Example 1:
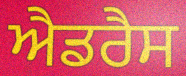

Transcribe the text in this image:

ਐਡਰੈਸ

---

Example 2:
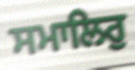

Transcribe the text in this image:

ਸਮਾਲਿਹੁ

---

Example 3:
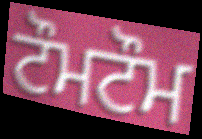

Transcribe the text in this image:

ਟੌਮਟੌਮ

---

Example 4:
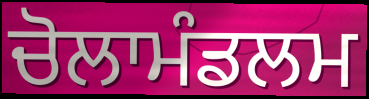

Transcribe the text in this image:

ਚੋਲਾਮੰਡਲਮ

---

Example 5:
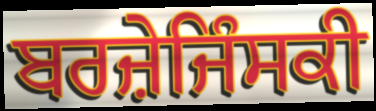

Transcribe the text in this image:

ਬਰਜ਼ੇਜਿੰਸਕੀ